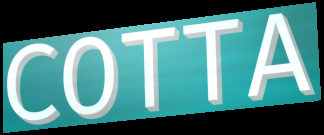
COTTA